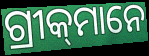
ଗ୍ରୀକ୍‍ମାନେ